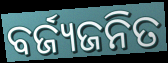
ବର୍ଜ୍ୟଜନିତ